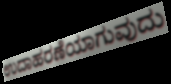
ಉದಾಹರಣೆಯಾಗುವುದು